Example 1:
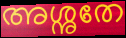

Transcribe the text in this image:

അശ്നുതേ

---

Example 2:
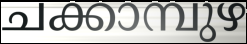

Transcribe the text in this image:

ചക്കാമ്പുഴ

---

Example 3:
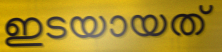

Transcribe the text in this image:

ഇടയായത്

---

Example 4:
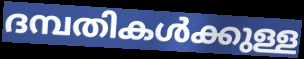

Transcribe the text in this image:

ദമ്പതികൾക്കുള്ള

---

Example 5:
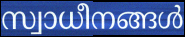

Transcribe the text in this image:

സ്വാധീനങ്ങൾ